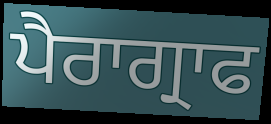
ਪੈਰਾਗ੍ਰਾਫ